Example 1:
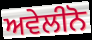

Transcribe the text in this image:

ਅਵੇਲੀਨੋ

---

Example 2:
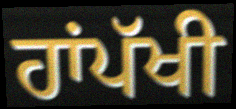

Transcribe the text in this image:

ਹਾਂਪੱਖੀ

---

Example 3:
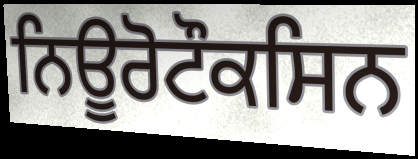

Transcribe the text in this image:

ਨਿਊਰੋਟੌਕਸਿਨ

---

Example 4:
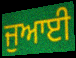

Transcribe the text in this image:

ਜੁਆਈ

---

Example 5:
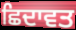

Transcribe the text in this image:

ਛਿਦਾਵਤ